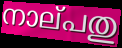
നാല്‌പതു